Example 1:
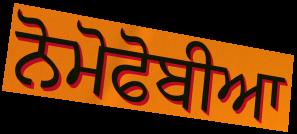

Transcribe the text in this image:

ਨੋਮੋਫੋਬੀਆ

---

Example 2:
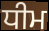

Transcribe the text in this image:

ਧੀਮ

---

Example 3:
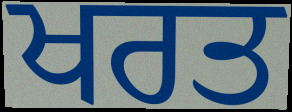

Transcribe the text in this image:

ਖਰਤ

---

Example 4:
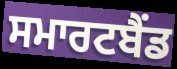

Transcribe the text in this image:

ਸਮਾਰਟਬੈਂਡ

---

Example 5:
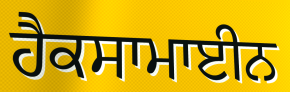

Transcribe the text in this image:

ਹੈਕਸਾਮਾਈਨ